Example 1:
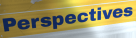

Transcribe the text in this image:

Perspectives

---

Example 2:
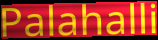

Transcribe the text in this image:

Palahalli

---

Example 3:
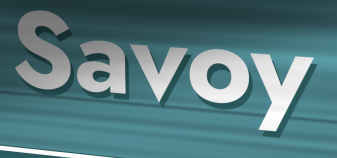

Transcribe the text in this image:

Savoy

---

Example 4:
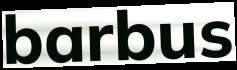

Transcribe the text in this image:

barbus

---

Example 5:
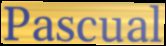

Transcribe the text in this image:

Pascual